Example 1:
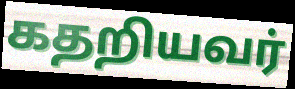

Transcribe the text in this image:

கதறியவர்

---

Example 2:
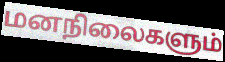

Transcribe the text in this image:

மனநிலைகளும்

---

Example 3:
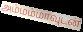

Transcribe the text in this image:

அம்மம்மாவுடன்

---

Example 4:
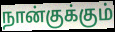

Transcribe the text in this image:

நான்குக்கும்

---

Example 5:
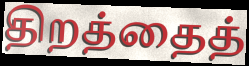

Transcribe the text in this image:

திறத்தைத்